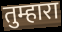
तुम्‍हारा